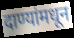
दाण्यांमधून